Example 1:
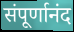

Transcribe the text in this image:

संपूर्णानंद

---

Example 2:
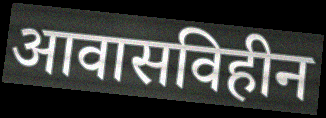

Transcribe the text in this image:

आवासविहीन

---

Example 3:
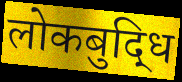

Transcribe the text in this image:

लोकबुद्धि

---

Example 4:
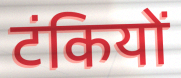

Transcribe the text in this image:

टंकियों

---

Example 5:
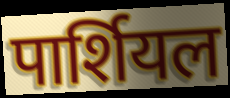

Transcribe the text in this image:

पार्शियल